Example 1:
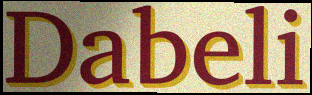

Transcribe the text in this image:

Dabeli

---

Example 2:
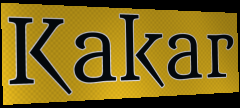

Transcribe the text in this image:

Kakar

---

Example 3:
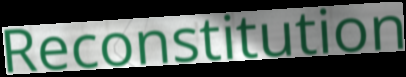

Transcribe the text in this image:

Reconstitution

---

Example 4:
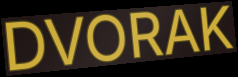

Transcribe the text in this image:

DVORAK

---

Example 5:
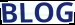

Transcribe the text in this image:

BLOG